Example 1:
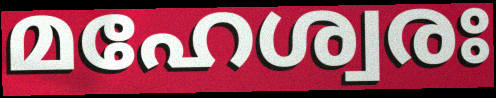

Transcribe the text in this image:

മഹേശ്വരഃ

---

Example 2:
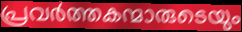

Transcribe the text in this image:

പ്രവർത്തകന്മാരുടെയും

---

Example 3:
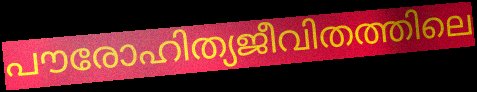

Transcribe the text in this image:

പൗരോഹിത്യജീവിതത്തിലെ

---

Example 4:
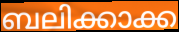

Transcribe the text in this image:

ബലിക്കാക്ക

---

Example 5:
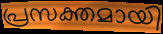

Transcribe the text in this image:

പ്രസക്തമായി